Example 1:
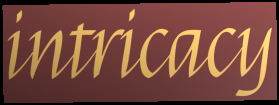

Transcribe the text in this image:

intricacy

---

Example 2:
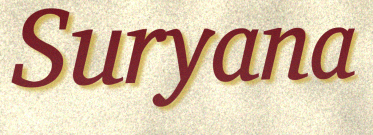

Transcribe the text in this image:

Suryana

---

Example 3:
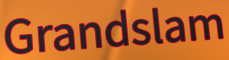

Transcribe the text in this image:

Grandslam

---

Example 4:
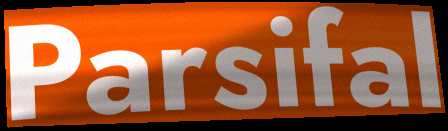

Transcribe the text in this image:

Parsifal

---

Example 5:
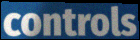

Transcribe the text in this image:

controls